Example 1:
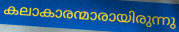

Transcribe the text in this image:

കലാകാരന്മാരായിരുന്നു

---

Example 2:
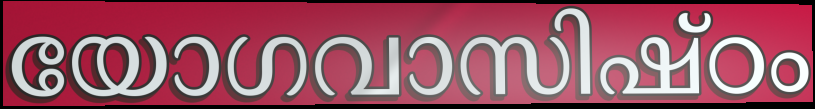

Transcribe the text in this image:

യോഗവാസിഷ്ഠം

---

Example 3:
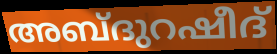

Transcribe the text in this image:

അബ്ദുറഷീദ്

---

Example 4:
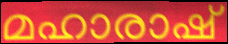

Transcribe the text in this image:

മഹാരാഷ്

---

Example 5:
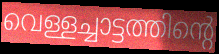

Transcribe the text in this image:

വെള്ളച്ചാട്ടത്തിന്റെ